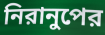
নিরানুপের